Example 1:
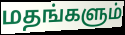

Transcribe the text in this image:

மதங்களும்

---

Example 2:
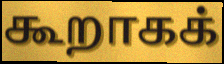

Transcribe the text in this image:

கூறாகக்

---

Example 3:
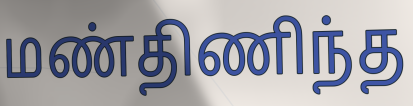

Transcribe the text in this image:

மண்திணிந்த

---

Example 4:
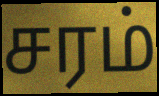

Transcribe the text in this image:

சரம்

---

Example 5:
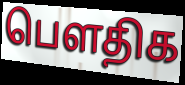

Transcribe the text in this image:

பெளதிக